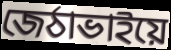
জেঠাভাইয়ে